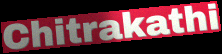
Chitrakathi